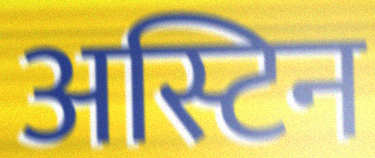
अस्टिन